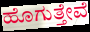
ಹೊಗುತ್ತೇವೆ